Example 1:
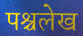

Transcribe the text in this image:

पश्चलेख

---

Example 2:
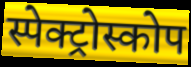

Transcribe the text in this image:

स्पेक्ट्रोस्कोप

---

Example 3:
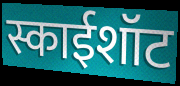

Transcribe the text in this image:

स्काईशॉट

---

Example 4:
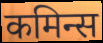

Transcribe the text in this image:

कमिन्स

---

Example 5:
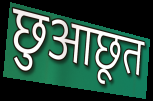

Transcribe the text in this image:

छुआछूत